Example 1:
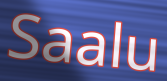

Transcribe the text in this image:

Saalu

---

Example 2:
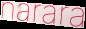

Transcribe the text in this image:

narara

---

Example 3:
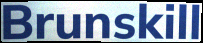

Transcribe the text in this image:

Brunskill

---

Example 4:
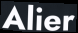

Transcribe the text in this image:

Alier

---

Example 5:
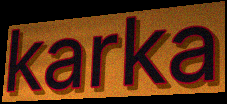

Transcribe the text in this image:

karka